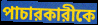
পাচারকারীকে